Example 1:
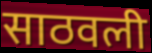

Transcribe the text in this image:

साठवली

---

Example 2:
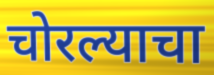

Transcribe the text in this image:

चोरल्याचा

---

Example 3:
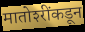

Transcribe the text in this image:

मातोश्रींकडून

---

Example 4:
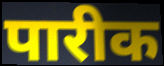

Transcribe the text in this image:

पारीक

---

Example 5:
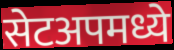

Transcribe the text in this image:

सेटअपमध्ये